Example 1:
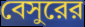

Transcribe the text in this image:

বেসুরের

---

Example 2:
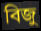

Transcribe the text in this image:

বিজু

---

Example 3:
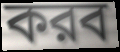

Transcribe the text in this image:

করব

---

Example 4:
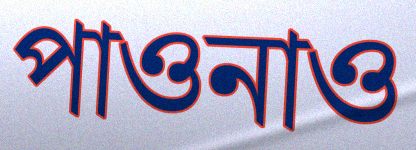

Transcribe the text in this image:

পাওনাও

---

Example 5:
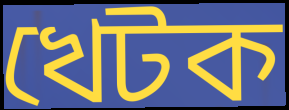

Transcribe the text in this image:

খেটক